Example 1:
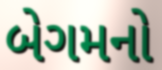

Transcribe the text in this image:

બેગમનો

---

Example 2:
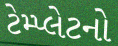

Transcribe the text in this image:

ટેમ્પ્લેટનો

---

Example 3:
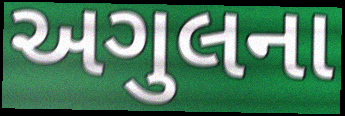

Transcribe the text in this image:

અગુલના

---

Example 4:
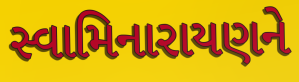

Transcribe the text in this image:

સ્વામિનારાયણને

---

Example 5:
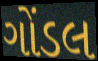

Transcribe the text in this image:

ગોંડલ